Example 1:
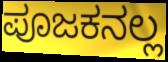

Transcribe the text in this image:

ಪೂಜಕನಲ್ಲ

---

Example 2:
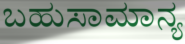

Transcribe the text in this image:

ಬಹುಸಾಮಾನ್ಯ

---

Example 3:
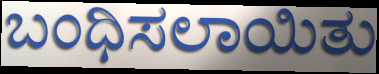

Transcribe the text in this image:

ಬಂಧಿಸಲಾಯಿತು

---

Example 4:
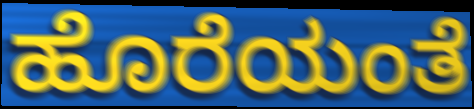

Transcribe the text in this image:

ಹೊರೆಯಂತೆ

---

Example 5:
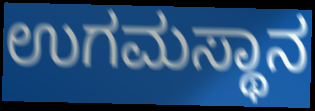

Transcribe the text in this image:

ಉಗಮಸ್ಥಾನ